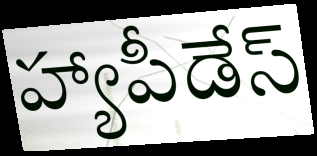
హ్యాపీడేస్